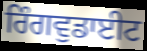
ਰਿੰਗਵੁਡਾਈਟ